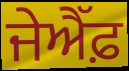
ਜੇਐੱਫ਼